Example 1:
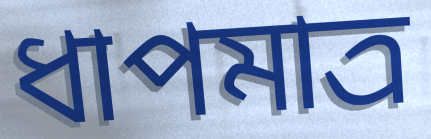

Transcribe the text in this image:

ধাপমাত্র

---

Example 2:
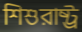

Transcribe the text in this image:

শিশুরাষ্ট্র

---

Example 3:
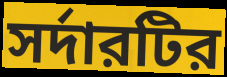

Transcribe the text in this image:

সর্দারটির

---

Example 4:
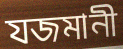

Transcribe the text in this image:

যজমানী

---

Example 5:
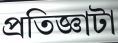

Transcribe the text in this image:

প্রতিজ্ঞাটা